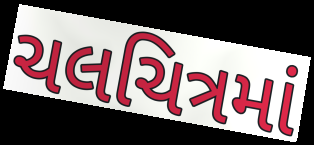
ચલચિત્રમાં